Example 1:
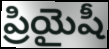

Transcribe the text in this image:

ప్రియైషీ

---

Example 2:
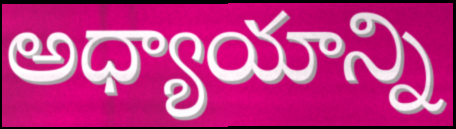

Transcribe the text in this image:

అధ్యాయాన్ని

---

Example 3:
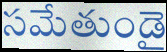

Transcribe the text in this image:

సమేతుండై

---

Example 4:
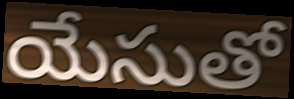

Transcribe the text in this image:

యేసుతో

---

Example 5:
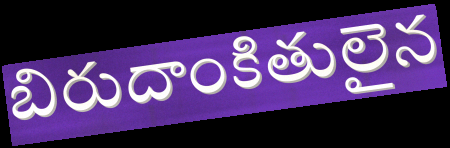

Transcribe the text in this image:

బిరుదాంకితులైన